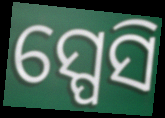
ସ୍ପେସି